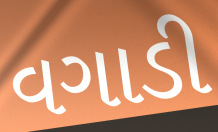
વગાડી